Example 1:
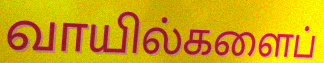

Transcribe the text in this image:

வாயில்களைப்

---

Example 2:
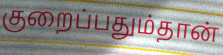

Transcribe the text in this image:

குறைப்பதும்தான்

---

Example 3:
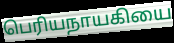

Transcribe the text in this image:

பெரியநாயகியை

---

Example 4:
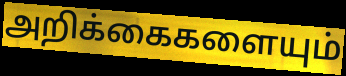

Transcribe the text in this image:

அறிக்கைகளையும்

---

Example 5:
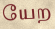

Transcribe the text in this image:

யேற